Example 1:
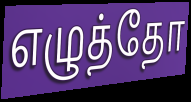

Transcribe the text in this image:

எழுத்தோ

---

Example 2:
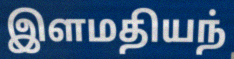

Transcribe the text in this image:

இளமதியந்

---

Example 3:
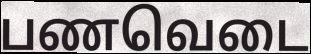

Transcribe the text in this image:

பணவெடை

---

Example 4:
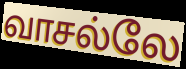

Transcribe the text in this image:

வாசல்லே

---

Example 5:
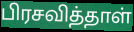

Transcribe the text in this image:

பிரசவித்தாள்